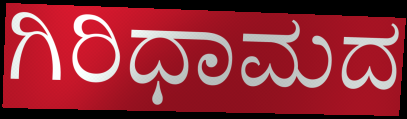
ಗಿರಿಧಾಮದ